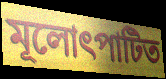
মূলোৎপাটিত